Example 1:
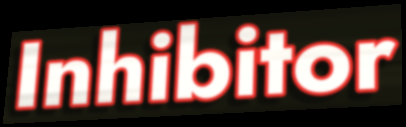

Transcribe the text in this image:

Inhibitor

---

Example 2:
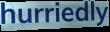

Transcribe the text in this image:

hurriedly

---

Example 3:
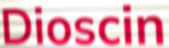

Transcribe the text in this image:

Dioscin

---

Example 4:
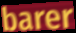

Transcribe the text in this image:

barer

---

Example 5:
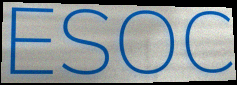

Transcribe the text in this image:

ESOC